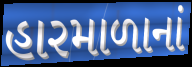
હારમાળાનાં